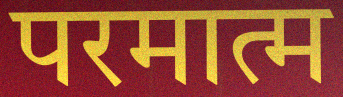
परमात्म